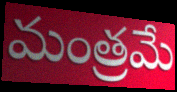
మంత్రమే